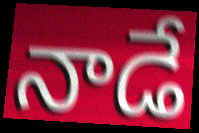
నాడే